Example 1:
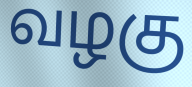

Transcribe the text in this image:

வழகு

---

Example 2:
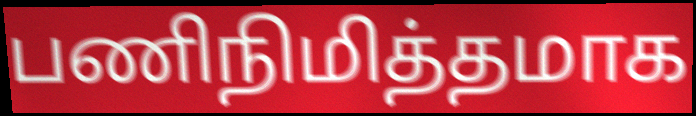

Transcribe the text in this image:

பணிநிமித்தமாக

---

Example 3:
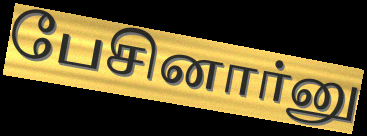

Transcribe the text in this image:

பேசினார்னு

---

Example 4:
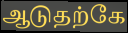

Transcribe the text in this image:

ஆடுதற்கே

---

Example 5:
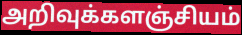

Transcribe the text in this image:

அறிவுக்களஞ்சியம்